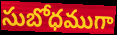
సుబోధముగా